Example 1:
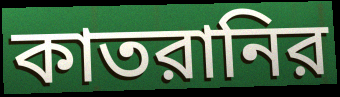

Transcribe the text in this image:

কাতরানির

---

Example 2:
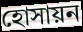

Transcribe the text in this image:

হোসায়ন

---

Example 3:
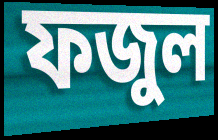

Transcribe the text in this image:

ফজুল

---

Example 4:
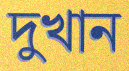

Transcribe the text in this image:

দুখান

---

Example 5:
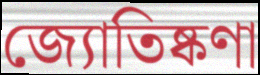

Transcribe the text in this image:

জ্যোতিষ্কণা